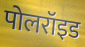
पोलरॉइड